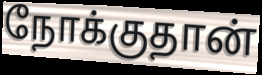
நோக்குதான்